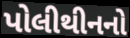
પોલીથીનનો